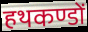
हथकण्डों